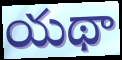
యథా